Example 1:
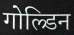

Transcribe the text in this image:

गोल्डिन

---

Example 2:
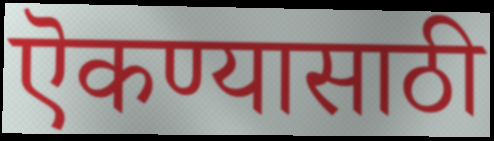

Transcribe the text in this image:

ऎकण्यासाठी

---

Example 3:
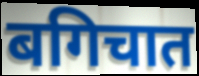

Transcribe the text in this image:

बगिचात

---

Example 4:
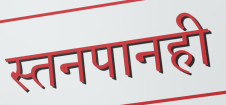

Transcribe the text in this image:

स्तनपानही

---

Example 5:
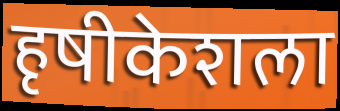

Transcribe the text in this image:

हृषीकेशला